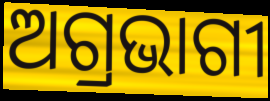
ଅଗ୍ରଭାଗୀ